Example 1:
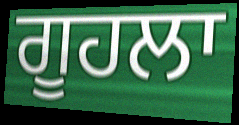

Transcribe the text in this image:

ਗੂਹਲਾ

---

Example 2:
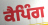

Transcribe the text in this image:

ਕੈਪਿੰਗ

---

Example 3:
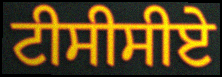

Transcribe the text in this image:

ਟੀਸੀਸੀਏ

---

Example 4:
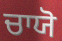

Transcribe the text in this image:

ਚਾਯੋ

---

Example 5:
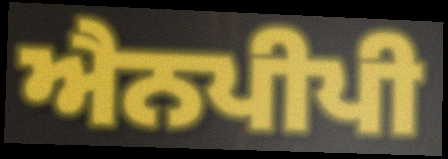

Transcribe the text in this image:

ਐਨਪੀਪੀ